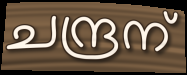
ചന്ദ്രന്